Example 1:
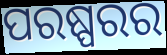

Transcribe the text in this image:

ପରଷ୍ପରର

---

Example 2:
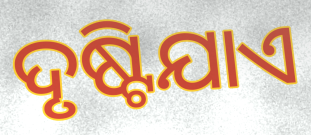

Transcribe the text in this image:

ଦୃଷ୍ଟିଯାଏ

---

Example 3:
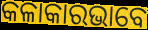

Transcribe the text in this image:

କଳାକାରଭାବେ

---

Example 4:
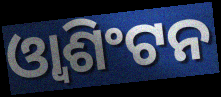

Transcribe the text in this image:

ଓ୍ୱାଶିଂଟନ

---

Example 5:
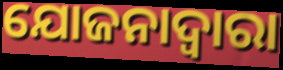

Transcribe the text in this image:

ଯୋଜନାଦ୍ୱାରା